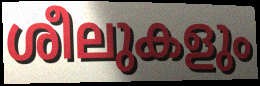
ശീലുകളും